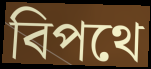
বিপথে